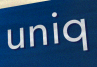
uniq